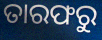
ତାରଫରୁ